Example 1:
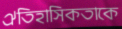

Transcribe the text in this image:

ঐতিহাসিকতাকে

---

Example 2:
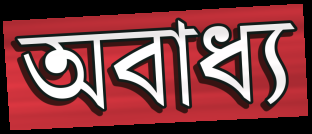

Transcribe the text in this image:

অবাধ্য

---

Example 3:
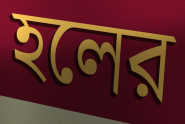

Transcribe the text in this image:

হলের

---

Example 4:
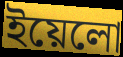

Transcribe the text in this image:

ইয়েলো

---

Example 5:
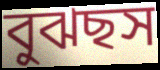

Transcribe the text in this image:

বুঝছস